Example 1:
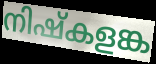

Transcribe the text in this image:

നിഷ്കളങ്ക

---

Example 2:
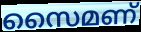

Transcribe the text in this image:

സൈമണ്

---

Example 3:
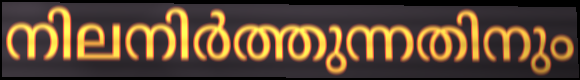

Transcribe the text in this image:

നിലനിർത്തുന്നതിനും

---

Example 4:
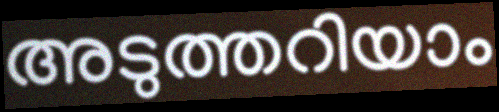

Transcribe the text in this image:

അടുത്തറിയാം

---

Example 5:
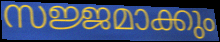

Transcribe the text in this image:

സജ്ജമാക്കും